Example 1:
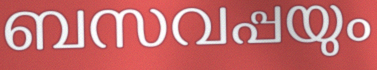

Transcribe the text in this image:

ബസവപ്പയും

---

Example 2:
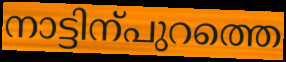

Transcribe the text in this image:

നാട്ടിന്പുറത്തെ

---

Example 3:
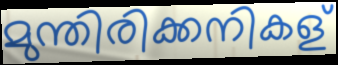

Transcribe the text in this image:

മുന്തിരിക്കനികള്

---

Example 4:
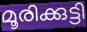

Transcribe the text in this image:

മൂരിക്കുട്ടി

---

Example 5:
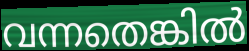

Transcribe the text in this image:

വന്നതെങ്കിൽ